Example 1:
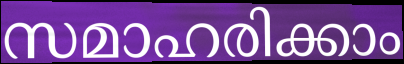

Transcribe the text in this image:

സമാഹരിക്കാം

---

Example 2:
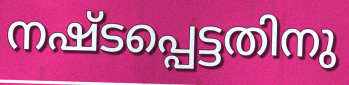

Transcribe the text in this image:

നഷ്ടപ്പെട്ടതിനു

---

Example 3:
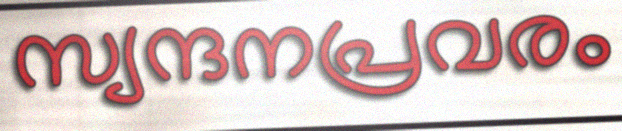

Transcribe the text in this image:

സ്യന്ദനപ്രവരം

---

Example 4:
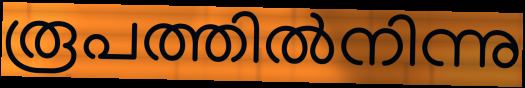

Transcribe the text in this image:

രൂപത്തിൽനിന്നു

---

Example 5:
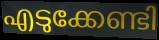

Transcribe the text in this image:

എടുക്കേണ്ടി